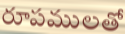
రూపములతో